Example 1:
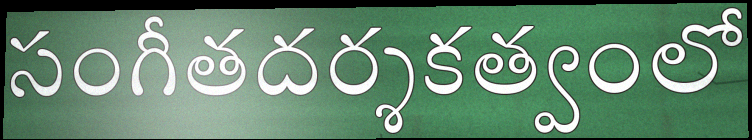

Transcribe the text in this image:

సంగీతదర్శకత్వంలో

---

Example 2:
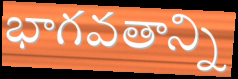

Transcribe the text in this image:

భాగవతాన్ని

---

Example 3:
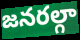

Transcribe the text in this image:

జనరల్గా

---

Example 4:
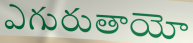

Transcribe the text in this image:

ఎగురుతాయో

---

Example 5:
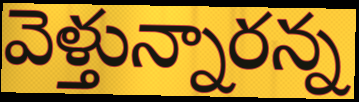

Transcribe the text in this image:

వెళ్తున్నారన్న